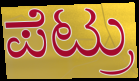
ಪೆಟ್ರು